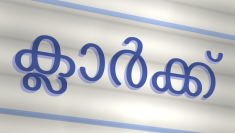
ക്ലാർക്ക്